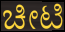
ಚೀಟಿ